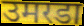
उमरडा